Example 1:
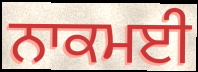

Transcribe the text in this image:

ਨਾਕਮਈ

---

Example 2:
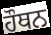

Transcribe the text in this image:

ਹੌਥਨ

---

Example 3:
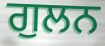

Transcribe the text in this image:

ਗੁਲਨ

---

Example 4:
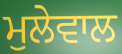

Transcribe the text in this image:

ਮੁਲੇਵਾਲ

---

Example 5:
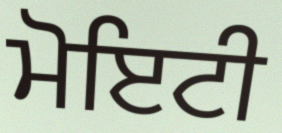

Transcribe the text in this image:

ਮੋਇਟੀ